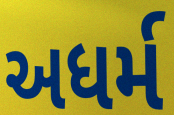
અધર્મ